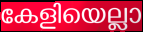
കേളിയെല്ലാ